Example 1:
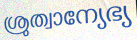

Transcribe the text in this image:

ശ്രുത്വാന്യേഭ്യ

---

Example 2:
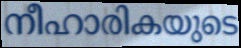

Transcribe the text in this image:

നീഹാരികയുടെ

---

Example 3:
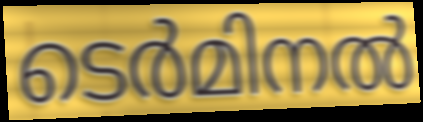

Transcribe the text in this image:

ടെർമിനൽ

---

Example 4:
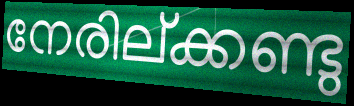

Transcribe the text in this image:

നേരില്ക്കണ്ടു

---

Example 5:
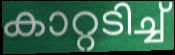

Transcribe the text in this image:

കാറ്റടിച്ച്